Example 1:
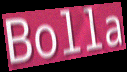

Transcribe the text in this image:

Bolla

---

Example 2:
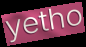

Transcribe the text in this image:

yetho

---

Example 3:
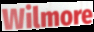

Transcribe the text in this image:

Wilmore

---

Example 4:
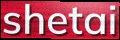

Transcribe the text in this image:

shetai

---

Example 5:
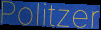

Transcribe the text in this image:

Politzer